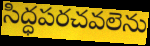
సిద్ధపరచవలెను